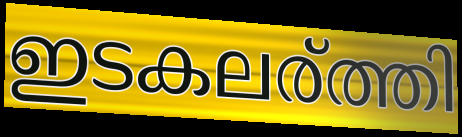
ഇടകലര്ത്തി